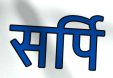
सर्पि